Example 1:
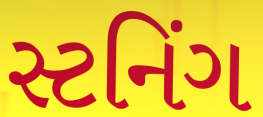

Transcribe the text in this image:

સ્ટનિંગ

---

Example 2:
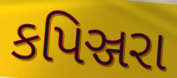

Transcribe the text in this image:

કપિઞ્જરા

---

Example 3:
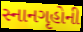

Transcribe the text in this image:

સ્નાનગૃહોની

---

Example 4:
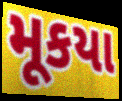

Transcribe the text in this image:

મૂકયા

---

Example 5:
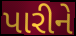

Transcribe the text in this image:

પારીને